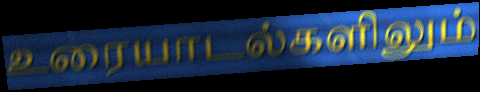
உரையாடல்களிலும்